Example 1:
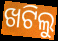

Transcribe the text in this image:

ଖଟିଲୁ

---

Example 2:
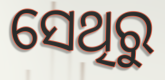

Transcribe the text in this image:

ସେଥିରୁ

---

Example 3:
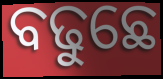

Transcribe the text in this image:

ବଢୁଛେ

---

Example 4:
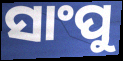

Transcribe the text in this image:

ସାଂପୁ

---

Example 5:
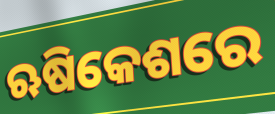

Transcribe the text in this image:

ଋଷିକେଶରେ